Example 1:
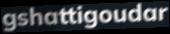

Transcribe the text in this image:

gshattigoudar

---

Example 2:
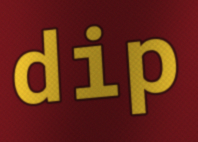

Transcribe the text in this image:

dip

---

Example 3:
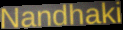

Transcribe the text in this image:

Nandhaki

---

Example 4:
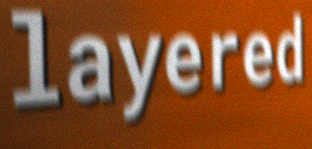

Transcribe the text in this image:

layered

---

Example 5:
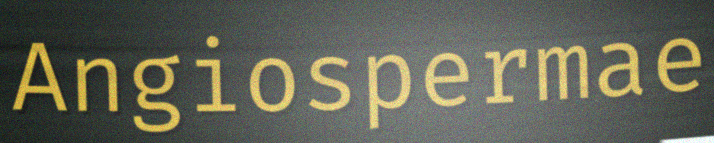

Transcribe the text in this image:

Angiospermae